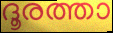
ദൂരത്താ